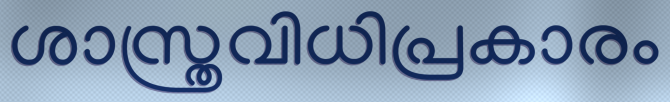
ശാസ്ത്രവിധിപ്രകാരം